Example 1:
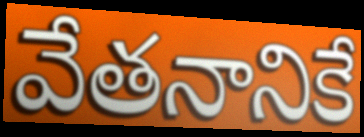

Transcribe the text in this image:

వేతనానికే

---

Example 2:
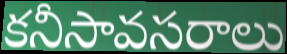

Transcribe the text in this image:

కనీసావసరాలు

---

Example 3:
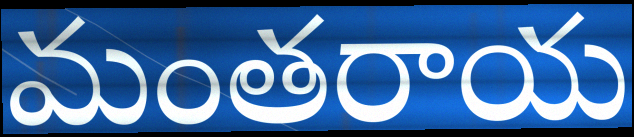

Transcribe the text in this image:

మంతరాయ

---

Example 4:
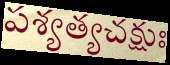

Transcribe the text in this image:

పశ్యత్యచక్షుః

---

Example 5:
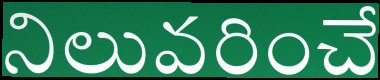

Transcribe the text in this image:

నిలువరించే